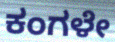
ಕಂಗಳೇ